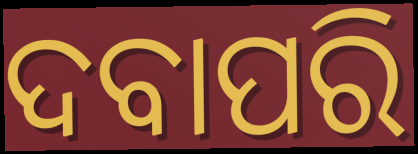
ଦବାପରି